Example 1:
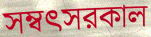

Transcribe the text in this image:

সম্বৎসরকাল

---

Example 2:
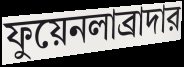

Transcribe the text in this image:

ফুয়েনলাব্রাদার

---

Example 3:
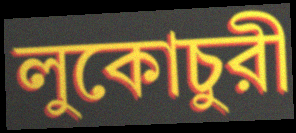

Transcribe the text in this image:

লুকোচুরী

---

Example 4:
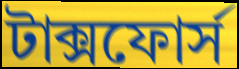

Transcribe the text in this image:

টাক্সফোর্স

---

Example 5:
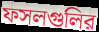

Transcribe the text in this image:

ফসলগুলির